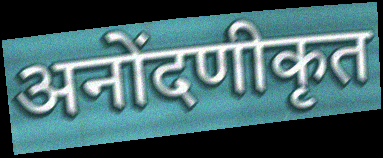
अनोंदणीकृत